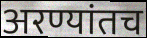
अरण्यांतच